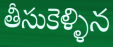
తీసుకెళ్ళిన